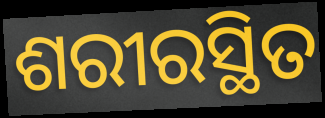
ଶରୀରସ୍ଥିତ